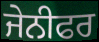
ਜੇਨੀਫਰ